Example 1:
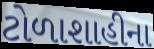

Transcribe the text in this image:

ટોળાશાહીના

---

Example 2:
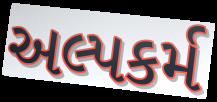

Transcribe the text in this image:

અલ્પકર્મ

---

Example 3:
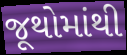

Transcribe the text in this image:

જૂથોમાંથી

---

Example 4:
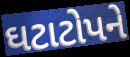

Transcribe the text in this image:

ઘટાટોપને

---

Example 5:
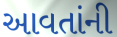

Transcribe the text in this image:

આવતાંની